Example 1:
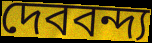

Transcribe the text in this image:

দেববন্দ্য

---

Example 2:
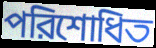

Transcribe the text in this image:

পরিশোধিত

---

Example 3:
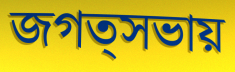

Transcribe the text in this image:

জগত্সভায়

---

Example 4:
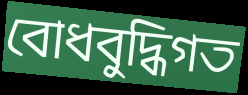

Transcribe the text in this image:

বোধবুদ্ধিগত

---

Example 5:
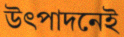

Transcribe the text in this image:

উৎপাদনেই